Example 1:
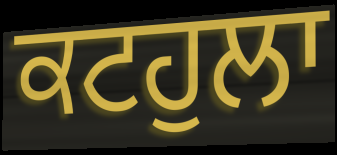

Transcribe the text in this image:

ਕਟਹੁਲਾ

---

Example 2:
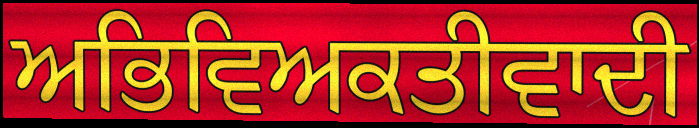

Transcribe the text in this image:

ਅਭਿਵਿਅਕਤੀਵਾਦੀ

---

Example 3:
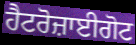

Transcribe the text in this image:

ਹੈਟਰੋਜ਼ਾਈਗੋਟ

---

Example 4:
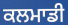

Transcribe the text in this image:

ਕਲਮਾਡੀ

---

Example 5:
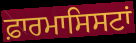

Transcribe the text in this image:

ਫ਼ਾਰਮਾਸਿਸਟਾਂ